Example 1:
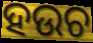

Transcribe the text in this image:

ହଉଚ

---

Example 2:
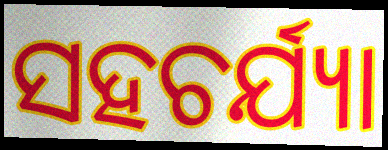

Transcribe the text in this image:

ସହଚର୍ଯ୍ୟା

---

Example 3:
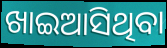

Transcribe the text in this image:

ଖାଇଆସିଥିବା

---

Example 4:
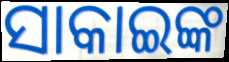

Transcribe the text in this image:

ସାକାଇଙ୍କ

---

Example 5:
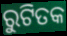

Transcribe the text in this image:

ରୁଟିତକ